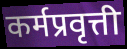
कर्मप्रवृत्ती